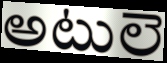
అటులె